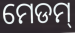
ମେଡମ୍